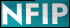
NFIP